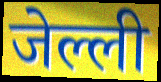
जेल्ली